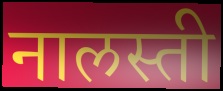
नालस्ती